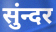
सुंन्दर